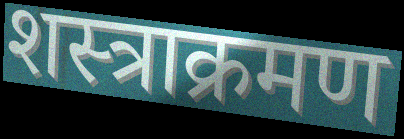
शस्त्राक्रमण